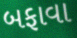
બફાવા